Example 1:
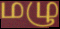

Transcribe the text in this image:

மழு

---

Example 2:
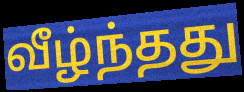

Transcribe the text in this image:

வீழ்ந்தது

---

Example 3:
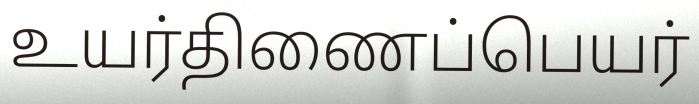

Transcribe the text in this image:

உயர்திணைப்பெயர்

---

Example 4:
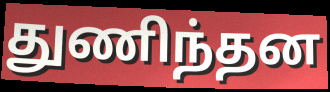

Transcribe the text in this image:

துணிந்தன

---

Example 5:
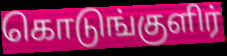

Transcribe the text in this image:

கொடுங்குளிர்